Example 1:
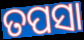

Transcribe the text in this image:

ତପସା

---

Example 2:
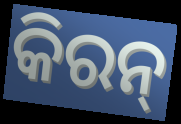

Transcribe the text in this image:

କିରନ୍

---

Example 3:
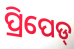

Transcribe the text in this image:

ପ୍ରିପେଡ୍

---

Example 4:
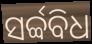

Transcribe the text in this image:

ସର୍ବ୍ବବିଧ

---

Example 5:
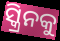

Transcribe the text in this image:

ସ୍କ୍ରିନକୁ